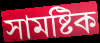
সামষ্টিক